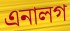
এনালগ